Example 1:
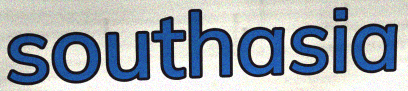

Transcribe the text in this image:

southasia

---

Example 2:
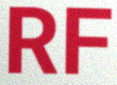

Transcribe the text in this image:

RF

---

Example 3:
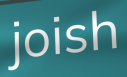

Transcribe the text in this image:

joish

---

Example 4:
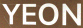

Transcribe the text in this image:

YEON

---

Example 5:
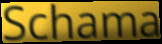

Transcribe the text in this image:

Schama